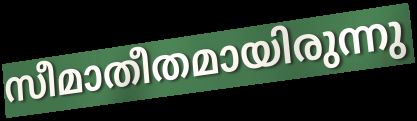
സീമാതീതമായിരുന്നു